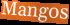
Mangos